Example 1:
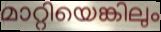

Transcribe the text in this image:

മാറ്റിയെങ്കിലും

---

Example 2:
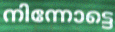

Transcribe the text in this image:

നിന്നോട്ടെ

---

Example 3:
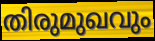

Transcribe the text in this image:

തിരുമുഖവും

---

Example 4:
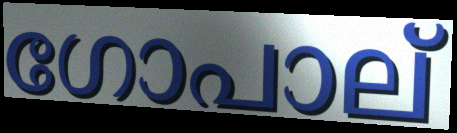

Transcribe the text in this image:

ഗോപാല്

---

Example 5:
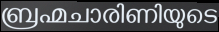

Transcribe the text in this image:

ബ്രഹ്മചാരിണിയുടെ